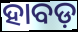
ହାବଡ଼